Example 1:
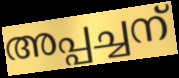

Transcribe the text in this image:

അപ്പച്ചന്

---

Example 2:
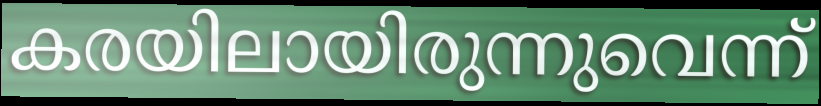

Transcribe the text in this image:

കരയിലായിരുന്നുവെന്ന്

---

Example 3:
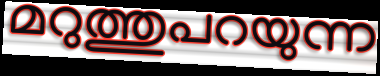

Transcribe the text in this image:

മറുത്തുപറയുന്ന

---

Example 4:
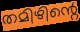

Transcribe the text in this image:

തമിഴിന്റെ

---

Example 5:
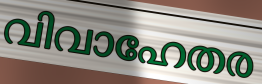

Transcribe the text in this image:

വിവാഹേതര